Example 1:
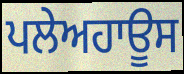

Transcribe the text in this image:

ਪਲੇਅਹਾਊਸ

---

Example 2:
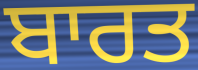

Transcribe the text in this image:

ਬਾਰਤ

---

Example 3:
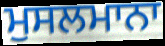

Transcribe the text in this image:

ਮੁਸਲਮਾਨਾ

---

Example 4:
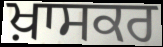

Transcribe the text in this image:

ਖ਼ਾਸਕਰ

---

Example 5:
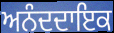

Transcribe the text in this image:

ਅਨੰਦਦਾਇਕ